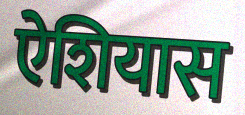
ऐशियास